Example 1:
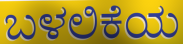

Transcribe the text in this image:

ಬಳಲಿಕೆಯ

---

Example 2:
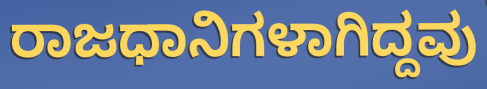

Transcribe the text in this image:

ರಾಜಧಾನಿಗಳಾಗಿದ್ದವು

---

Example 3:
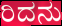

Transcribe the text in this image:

ರಿದನು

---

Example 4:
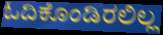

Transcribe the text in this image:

ಓದಿಕೊಂಡಿರಲಿಲ್ಲ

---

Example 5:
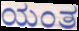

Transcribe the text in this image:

ಯಂತ